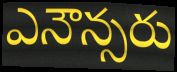
ఎనౌన్సరు